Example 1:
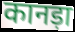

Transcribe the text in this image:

कानड़ा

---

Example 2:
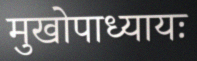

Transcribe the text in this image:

मुखोपाध्यायः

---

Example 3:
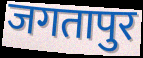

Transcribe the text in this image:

जगतापुर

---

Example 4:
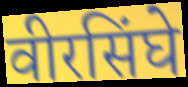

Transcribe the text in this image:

वीरसिंघे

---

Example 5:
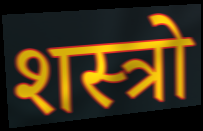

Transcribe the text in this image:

शस्त्रो